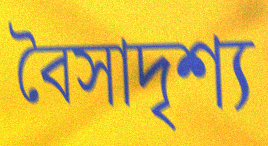
বৈসাদৃশ্য